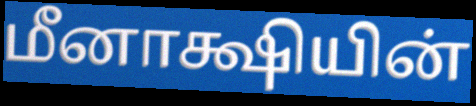
மீனாக்ஷியின்